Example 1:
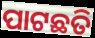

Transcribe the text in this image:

ପାଟଛତି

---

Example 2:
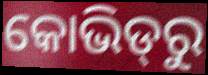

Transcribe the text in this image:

କୋଭିଡ୍‌ରୁ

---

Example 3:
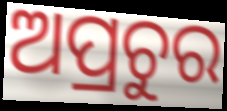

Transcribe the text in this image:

ଅପ୍ରଚୁର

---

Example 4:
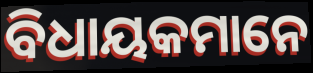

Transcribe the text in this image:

ବିଧାୟକମାନେ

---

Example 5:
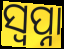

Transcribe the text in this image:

ସ୍ଵପ୍ନା